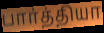
பார்த்தியா